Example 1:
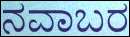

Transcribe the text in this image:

ನವಾಬರ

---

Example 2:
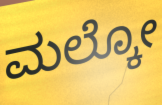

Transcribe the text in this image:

ಮಲ್ಕೋ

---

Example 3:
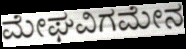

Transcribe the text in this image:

ಮೇಘವಿಗಮೇನ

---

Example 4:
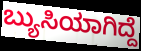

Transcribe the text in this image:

ಬ್ಯುಸಿಯಾಗಿದ್ದೆ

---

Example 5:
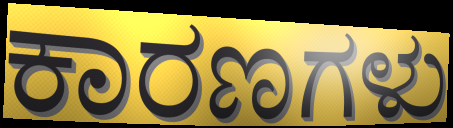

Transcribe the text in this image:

ಕಾರಣಗಳು